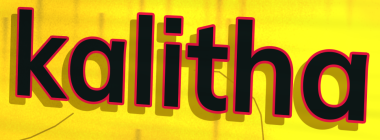
kalitha